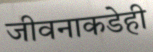
जीवनाकडेही